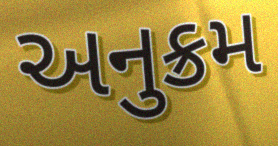
અનુક્રમ